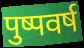
पुष्पवर्ष